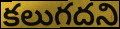
కలుగదని